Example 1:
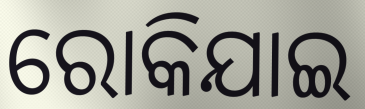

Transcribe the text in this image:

ରୋକିଯାଇ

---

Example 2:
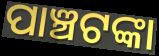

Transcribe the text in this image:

ପାଞ୍ଚଟଙ୍କା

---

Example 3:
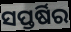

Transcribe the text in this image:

ସପ୍ତର୍ଷିର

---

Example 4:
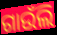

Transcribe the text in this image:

ଗାଉଁଲି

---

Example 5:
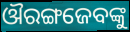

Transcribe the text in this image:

ଔରଙ୍ଗଜେବଙ୍କୁ